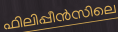
ഫിലിപ്പീൻസിലെ